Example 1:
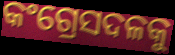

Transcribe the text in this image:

କଂଗ୍ରେସଦଳକୁ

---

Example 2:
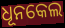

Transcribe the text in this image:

ଧୂନକେଲ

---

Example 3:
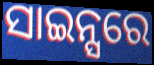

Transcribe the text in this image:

ସାଇନ୍ସରେ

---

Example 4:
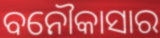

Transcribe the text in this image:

ବନୌକାସାର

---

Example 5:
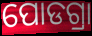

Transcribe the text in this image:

ପୋଡଗ୍ରା